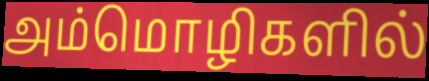
அம்மொழிகளில்